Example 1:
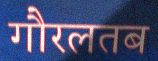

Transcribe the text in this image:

गौरलतब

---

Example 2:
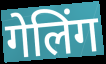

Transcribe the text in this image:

गेलिंग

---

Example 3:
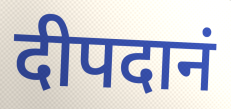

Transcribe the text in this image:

दीपदानं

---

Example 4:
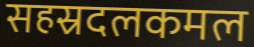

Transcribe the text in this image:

सहस्रदलकमल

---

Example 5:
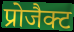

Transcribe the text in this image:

प्रोजैक्ट